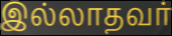
இல்லாதவர்